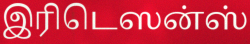
இரிடெஸன்ஸ்